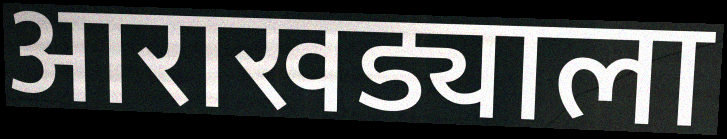
आराखड्याला